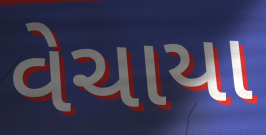
વેચાયા